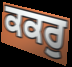
ਕਕਰੁ